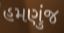
હમણુંજ